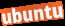
ubuntu